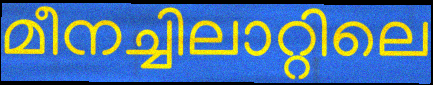
മീനച്ചിലാറ്റിലെ